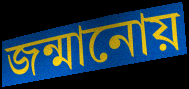
জন্মানোয়